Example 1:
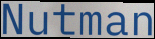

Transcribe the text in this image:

Nutman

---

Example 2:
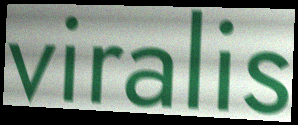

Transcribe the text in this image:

viralis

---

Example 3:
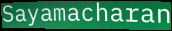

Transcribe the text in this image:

Sayamacharan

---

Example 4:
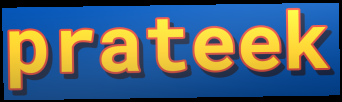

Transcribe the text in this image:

prateek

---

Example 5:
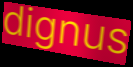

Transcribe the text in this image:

dignus